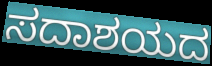
ಸದಾಶಯದ